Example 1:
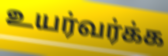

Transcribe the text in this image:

உயர்வர்க்க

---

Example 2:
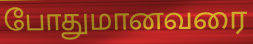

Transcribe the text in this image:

போதுமானவரை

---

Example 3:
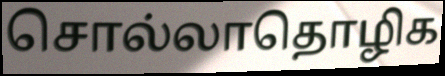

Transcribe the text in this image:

சொல்லாதொழிக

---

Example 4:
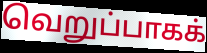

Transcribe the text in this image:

வெறுப்பாகக்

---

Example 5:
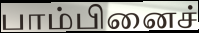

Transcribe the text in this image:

பாம்பினைச்